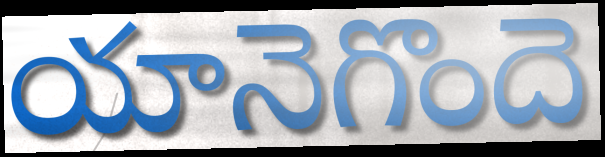
యానెగొందె